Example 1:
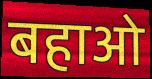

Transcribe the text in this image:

बहाओ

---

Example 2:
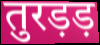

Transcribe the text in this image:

तुरड़ड़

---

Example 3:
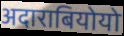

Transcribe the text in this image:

अदाराबियोयो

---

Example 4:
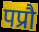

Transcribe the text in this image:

पप्रौ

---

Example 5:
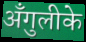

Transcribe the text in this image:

अँगुलीके